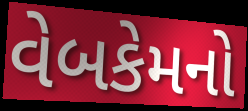
વેબકેમનો